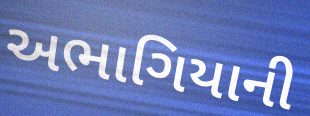
અભાગિયાની